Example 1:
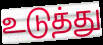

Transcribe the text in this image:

உடுத்து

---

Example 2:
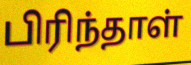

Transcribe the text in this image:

பிரிந்தாள்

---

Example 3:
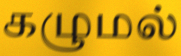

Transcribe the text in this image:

கழுமல்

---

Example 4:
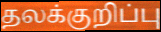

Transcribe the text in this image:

தலக்குறிப்பு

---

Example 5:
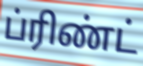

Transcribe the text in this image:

ப்ரிண்ட்